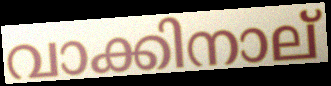
വാക്കിനാല്